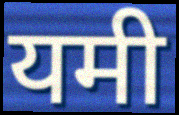
यमी